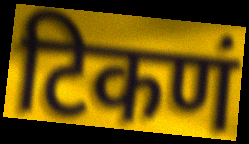
टिकणं